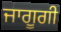
ਜਾਗੂਗੀ